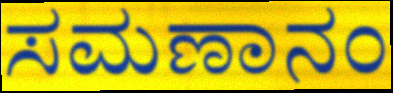
ಸಮಣಾನಂ